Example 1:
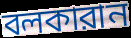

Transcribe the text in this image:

বলকারান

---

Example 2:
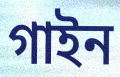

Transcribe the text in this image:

গাইন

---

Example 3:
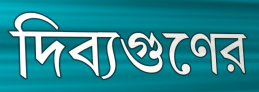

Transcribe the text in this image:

দিব্যগুণের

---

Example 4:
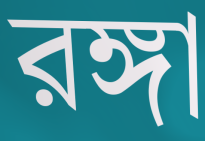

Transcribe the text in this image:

রঙ্গা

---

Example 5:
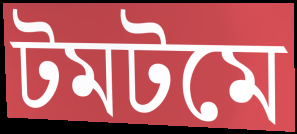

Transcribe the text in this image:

টমটমে